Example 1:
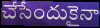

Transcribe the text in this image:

చేసేందుకైనా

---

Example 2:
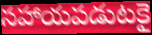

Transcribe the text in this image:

సహాయపడుటకై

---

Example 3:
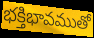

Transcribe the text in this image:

భక్తిభావముతో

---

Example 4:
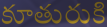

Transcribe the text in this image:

కూతురుకి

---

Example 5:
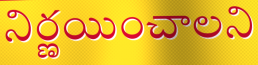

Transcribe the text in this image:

నిర్ణయించాలని